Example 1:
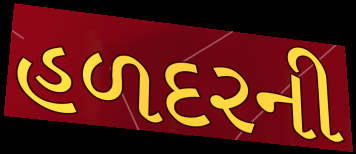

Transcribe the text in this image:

હળદરની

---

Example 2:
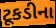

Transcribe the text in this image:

ટૂકડીના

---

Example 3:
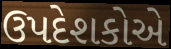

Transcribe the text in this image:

ઉપદેશકોએ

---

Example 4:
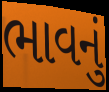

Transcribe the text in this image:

ભાવનું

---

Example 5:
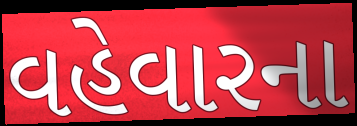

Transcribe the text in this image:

વહેવારના